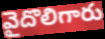
వైదొలిగారు